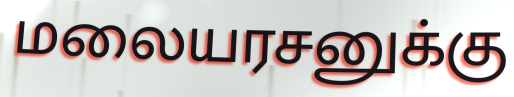
மலையரசனுக்கு